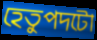
হেতুপদটো